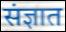
संज्ञात